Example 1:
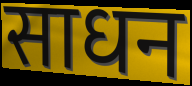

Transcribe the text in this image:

साधन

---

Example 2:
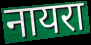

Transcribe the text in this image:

नायरा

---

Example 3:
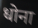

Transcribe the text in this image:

धोना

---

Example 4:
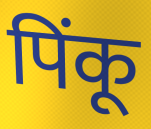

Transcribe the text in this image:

पिंकू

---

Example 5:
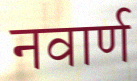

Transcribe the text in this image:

नवार्ण